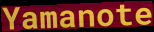
Yamanote